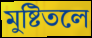
মুষ্টিতলে